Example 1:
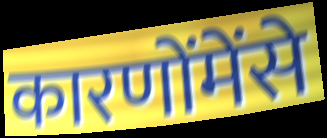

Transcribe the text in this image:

कारणोंमेंसे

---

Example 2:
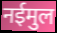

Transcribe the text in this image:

नईमुल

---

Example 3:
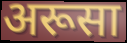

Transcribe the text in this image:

अरूसा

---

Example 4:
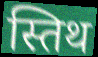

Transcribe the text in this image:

स्तिथ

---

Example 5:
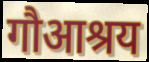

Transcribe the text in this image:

गौआश्रय